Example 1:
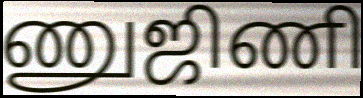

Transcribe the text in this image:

ணுஜிணி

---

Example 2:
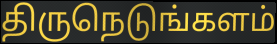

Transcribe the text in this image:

திருநெடுங்களம்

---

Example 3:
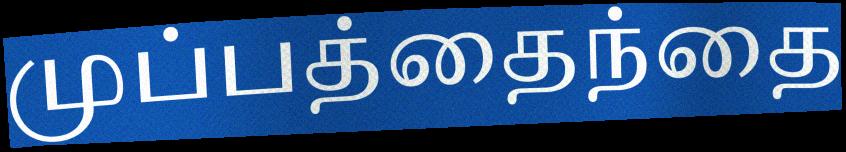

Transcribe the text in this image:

முப்பத்தைந்தை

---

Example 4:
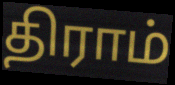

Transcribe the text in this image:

திராம்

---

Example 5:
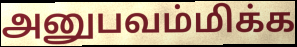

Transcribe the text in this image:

அனுபவம்மிக்க